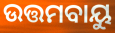
ଉତ୍ତମବାୟୁ